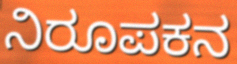
ನಿರೂಪಕನ